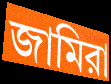
জামিরা